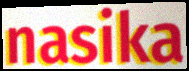
nasika